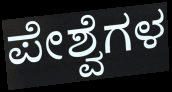
ಪೇಶ್ವೆಗಳ